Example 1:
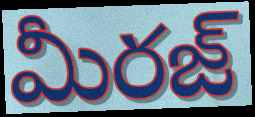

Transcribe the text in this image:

మీరజ్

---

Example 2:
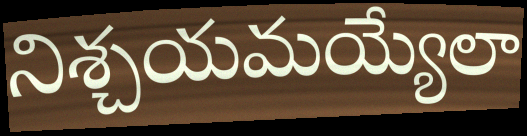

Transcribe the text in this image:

నిశ్చయమయ్యేలా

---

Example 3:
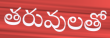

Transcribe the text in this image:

తరువులతో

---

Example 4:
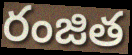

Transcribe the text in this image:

రంజిత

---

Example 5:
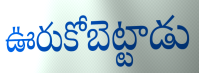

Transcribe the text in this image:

ఊరుకోబెట్టాడు